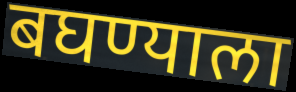
बघण्याला